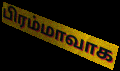
பிரம்மாவாக